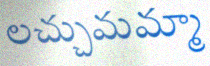
లచ్చుమమ్మా